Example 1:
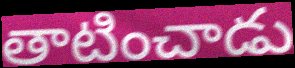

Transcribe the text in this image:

తాటించాడు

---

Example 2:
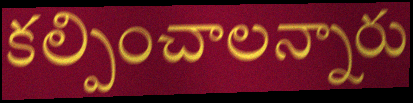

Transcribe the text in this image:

కల్పించాలన్నారు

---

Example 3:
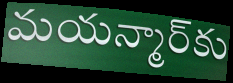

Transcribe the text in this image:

మయన్మార్‌కు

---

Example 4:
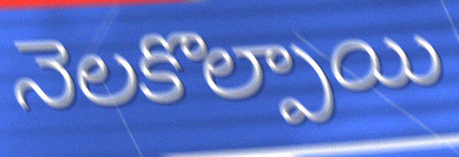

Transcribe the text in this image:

నెలకొల్పాయి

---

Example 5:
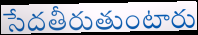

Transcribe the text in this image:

సేదతీరుతుంటారు